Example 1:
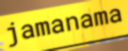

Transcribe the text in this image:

jamanama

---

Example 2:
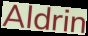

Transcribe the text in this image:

Aldrin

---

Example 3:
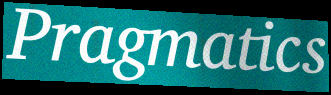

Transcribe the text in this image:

Pragmatics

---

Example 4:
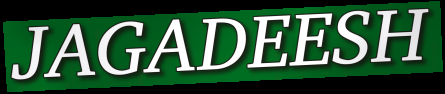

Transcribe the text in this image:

JAGADEESH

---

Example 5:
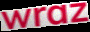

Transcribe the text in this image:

wraz